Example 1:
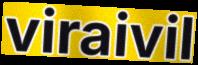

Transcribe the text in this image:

viraivil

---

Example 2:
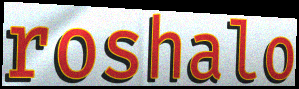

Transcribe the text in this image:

roshalo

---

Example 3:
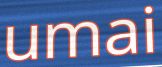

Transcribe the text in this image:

umai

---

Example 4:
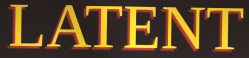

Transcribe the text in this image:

LATENT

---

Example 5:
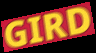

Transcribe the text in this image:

GIRD